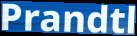
Prandtl